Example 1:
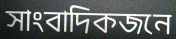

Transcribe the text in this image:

সাংবাদিকজনে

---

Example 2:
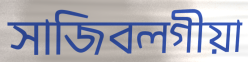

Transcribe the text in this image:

সাজিবলগীয়া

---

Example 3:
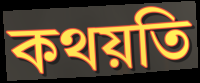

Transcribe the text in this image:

কথয়তি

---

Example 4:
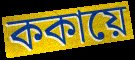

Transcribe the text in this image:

ককায়ে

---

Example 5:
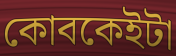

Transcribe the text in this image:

কোবকেইটা